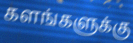
களங்களுக்கு